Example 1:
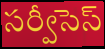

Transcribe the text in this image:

సర్వీసెస్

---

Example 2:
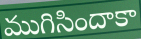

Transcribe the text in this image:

ముగిసిందాకా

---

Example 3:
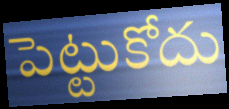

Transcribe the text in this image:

పెట్టుకోదు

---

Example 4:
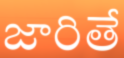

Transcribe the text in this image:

జారితే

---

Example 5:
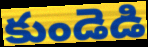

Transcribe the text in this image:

కుండెడి